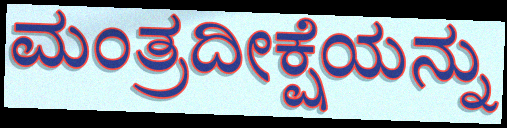
ಮಂತ್ರದೀಕ್ಷೆಯನ್ನು